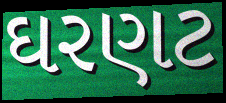
ઘરણટ